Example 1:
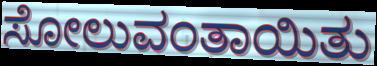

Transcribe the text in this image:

ಸೋಲುವಂತಾಯಿತು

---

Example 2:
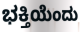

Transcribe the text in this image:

ಭಕ್ತಿಯೆಂದು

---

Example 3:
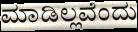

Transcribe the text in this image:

ಮಾಡಿಲ್ಲವೆಂದು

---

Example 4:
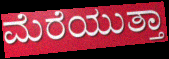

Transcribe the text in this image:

ಮೆರೆಯುತ್ತಾ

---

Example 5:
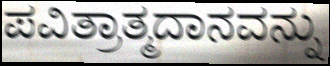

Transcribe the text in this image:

ಪವಿತ್ರಾತ್ಮದಾನವನ್ನು